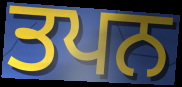
ਤਪਨ